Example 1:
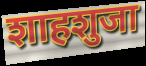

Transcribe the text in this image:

शाहशुजा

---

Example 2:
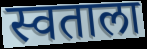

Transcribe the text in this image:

स्वताला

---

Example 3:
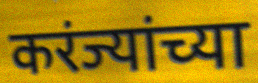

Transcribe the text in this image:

करंज्यांच्या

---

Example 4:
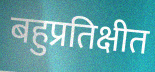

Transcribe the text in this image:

बहुप्रतिक्षीत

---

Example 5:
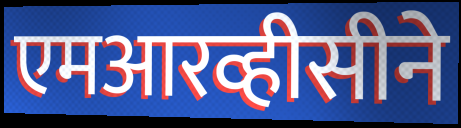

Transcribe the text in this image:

एमआरव्हीसीने